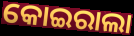
କୋଇରାଲା